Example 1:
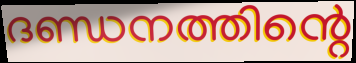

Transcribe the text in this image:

ദണ്ഡനത്തിന്റെ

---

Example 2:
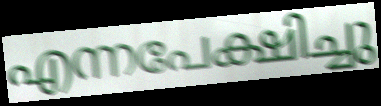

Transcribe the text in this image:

എന്നപേക്ഷിച്ചു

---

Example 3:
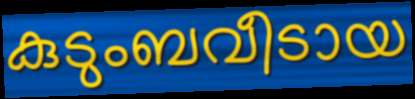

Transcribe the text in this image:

കുടുംബവീടായ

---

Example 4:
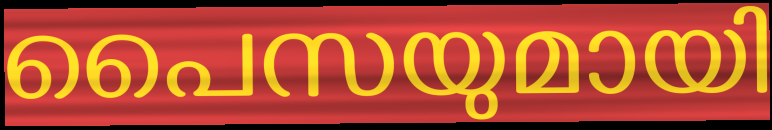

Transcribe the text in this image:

പൈസയുമായി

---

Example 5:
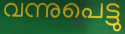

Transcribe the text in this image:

വന്നുപെട്ടു